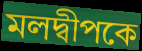
মলদ্বীপকে